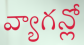
వ్యాగన్లో